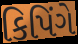
કિપિંગે